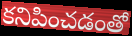
కనిపించడంతో